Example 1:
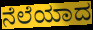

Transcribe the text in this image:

ನೆಲೆಯಾದ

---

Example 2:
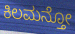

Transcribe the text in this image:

ಕಿಲಮನ್ತೋ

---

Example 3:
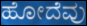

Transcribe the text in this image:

ಹೋದೆವು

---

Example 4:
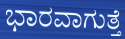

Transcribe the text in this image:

ಭಾರವಾಗುತ್ತೆ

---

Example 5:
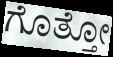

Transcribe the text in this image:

ಗೊತ್ತೋ